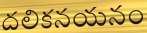
దలికనయనం